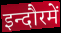
इन्दौरमें